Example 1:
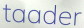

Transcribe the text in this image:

taader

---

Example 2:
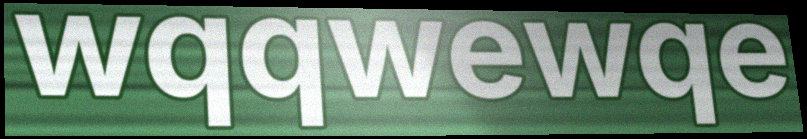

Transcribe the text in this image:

wqqwewqe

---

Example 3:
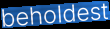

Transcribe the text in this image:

beholdest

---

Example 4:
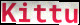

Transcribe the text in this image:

Kittu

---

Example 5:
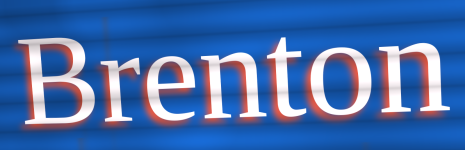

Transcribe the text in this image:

Brenton